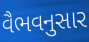
વૈભવનુસાર